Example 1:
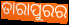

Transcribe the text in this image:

ତାରାପୁରର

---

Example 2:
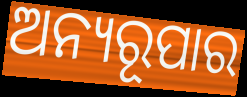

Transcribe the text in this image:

ଅନ୍ୟରୂପାର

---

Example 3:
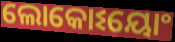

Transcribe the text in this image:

ଲୋକୋଽୟୋଂ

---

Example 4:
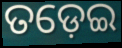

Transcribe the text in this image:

ତଡ଼େଇ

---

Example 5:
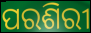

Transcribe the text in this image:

ପରଶିରୀ